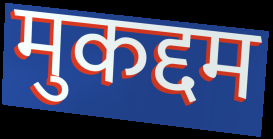
मुकद्दम